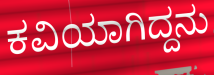
ಕವಿಯಾಗಿದ್ದನು